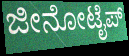
ಜೀನೋಟೈಪ್